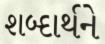
શબ્દાર્થને